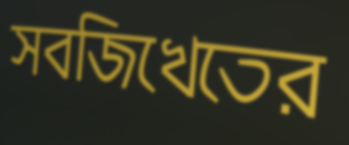
সবজিখেতের